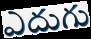
ఎదుగు